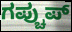
ಗಪ್ಚುಪ್